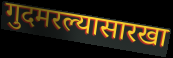
गुदमरल्यासारखा